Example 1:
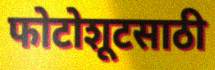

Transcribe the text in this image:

फोटोशूटसाठी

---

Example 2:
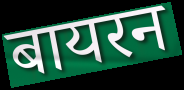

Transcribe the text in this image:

बायरन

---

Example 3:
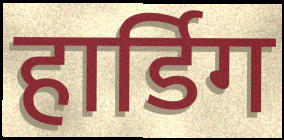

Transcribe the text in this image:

हार्डिग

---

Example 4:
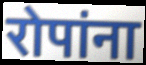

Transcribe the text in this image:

रोपांना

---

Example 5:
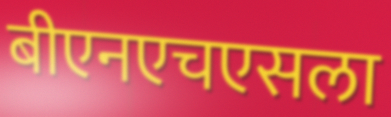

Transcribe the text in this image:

बीएनएचएसला